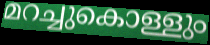
മറച്ചുകൊള്ളും